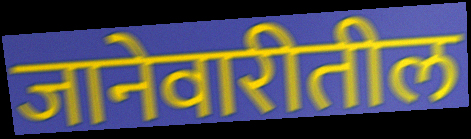
जानेवारीतील